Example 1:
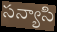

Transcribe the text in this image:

సన్యాసి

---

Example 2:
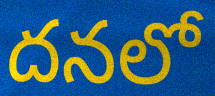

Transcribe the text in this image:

దనలో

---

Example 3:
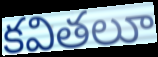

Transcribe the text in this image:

కవితలూ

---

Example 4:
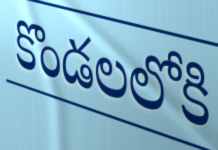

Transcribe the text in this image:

కొండలలోకి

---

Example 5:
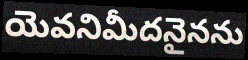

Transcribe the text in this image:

యెవనిమీదనైనను